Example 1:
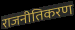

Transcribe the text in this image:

राजनीतिकरण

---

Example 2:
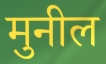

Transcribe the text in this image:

मुनील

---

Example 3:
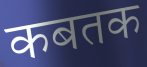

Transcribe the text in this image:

कबतक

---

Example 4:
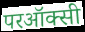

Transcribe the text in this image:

परऑक्सी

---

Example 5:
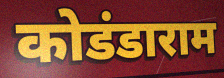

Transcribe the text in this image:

कोडंडाराम